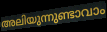
അലിയുന്നുണ്ടാവാം